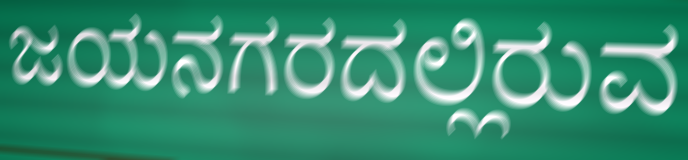
ಜಯನಗರದಲ್ಲಿರುವ